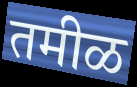
तमीळ